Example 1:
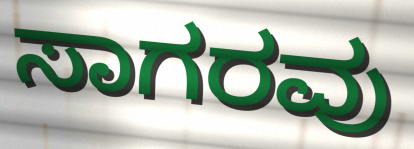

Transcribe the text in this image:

ಸಾಗರವು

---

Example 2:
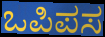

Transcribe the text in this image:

ಒಪಿಪಸ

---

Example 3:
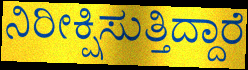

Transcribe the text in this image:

ನಿರೀಕ್ಷಿಸುತ್ತಿದ್ದಾರೆ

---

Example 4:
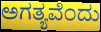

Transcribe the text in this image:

ಅಗತ್ಯವೆಂದು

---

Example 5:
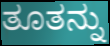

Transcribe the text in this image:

ತೂತನ್ನು